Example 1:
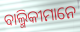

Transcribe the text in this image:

ବାଲ୍ମିକୀମାନେ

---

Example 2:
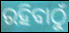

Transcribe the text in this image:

ରହିବାଠୁଁ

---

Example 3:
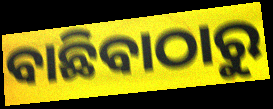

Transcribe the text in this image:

ବାଛିବାଠାରୁ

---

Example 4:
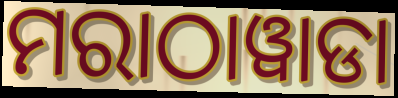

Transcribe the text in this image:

ମରାଠାୱାଡା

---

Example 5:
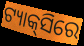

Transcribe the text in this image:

ଟ୍ୟାକ୍‍ସିରେ